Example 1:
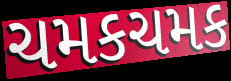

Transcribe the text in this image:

ચમકચમક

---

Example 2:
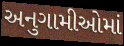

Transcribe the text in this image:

અનુગામીઓમાં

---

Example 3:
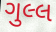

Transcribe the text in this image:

ગુલ્લ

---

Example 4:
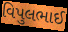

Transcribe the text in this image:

વિપુલભાઈ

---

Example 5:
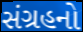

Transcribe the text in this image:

સંગ્રહનો